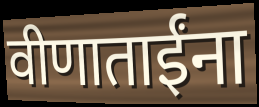
वीणाताईंना